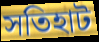
সতিহাট